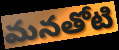
మనతోటి